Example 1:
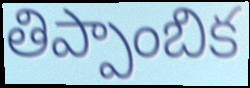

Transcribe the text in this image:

తిప్పాంబిక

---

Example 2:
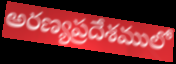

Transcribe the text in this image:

అరణ్యప్రదేశములో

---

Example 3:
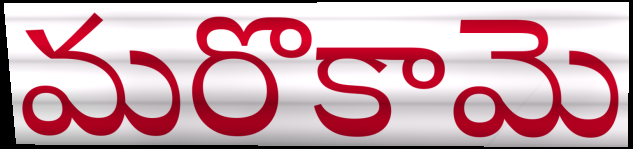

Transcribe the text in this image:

మరొకామె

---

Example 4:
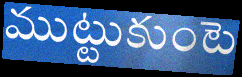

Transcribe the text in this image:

ముట్టుకుంటె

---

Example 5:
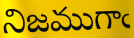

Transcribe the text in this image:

నిజముగాఁ